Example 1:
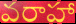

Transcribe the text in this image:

వరాహా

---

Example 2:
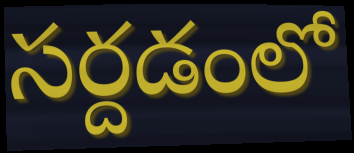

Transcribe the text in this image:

సర్దడంలో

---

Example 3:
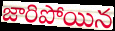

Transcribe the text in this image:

జారిపోయిన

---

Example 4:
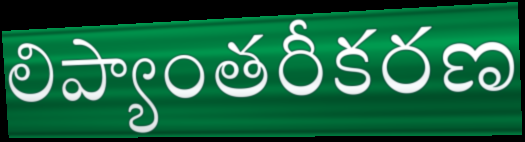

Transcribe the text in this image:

లిప్యాంతరీకరణ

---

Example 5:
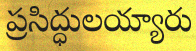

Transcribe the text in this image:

ప్రసిద్ధులయ్యారు